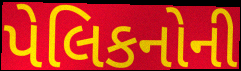
પેલિકનોની